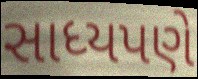
સાધ્યપણે